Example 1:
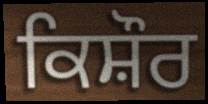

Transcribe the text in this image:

ਕਿਸ਼ੌਰ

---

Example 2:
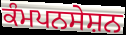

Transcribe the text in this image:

ਕੰਮਪਨਸੇਸ਼ਨ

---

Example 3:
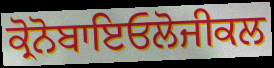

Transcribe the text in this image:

ਕ੍ਰੋਨੋਬਾਇਓਲੋਜੀਕਲ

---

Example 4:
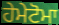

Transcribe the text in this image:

ਹੇਮੇਟੋਮਾ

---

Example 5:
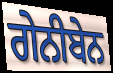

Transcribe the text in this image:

ਗੇਨੀਬੇਨ